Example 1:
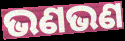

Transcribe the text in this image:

ଭଣଭଣ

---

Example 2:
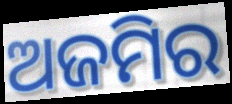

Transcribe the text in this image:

ଅଜମିର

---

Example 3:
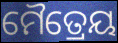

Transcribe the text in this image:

ମୈତ୍ରେୟ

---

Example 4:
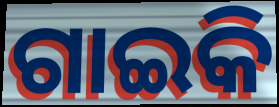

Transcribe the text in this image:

ଗାଇକି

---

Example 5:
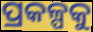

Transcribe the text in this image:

ପ୍ରକଳ୍ପକୁ